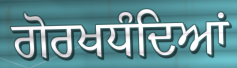
ਗੋਰਖਧੰਦਿਆਂ